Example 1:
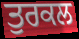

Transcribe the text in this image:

ਤੁਰਕਲ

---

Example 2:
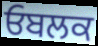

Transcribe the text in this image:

ਓਬਲਕ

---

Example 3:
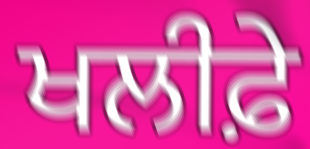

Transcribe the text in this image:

ਖਲੀਫ਼ੇ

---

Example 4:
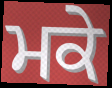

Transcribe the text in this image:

ਮਕੇ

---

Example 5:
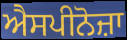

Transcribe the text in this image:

ਐਸਪੀਨੋਜ਼ਾ